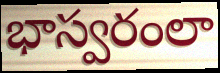
భాస్వరంలా